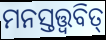
ମନସ୍ତତ୍ତ୍ଵବିତ୍